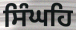
ਸਿੰਘਹਿ